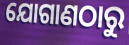
ଯୋଗାଣଠାରୁ